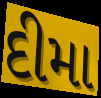
દીમા